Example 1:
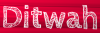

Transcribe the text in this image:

Ditwah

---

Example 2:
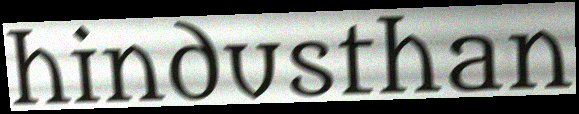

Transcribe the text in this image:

hindusthan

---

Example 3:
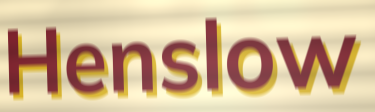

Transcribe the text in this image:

Henslow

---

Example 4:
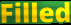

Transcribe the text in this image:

Filled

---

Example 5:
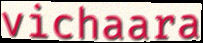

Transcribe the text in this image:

vichaara